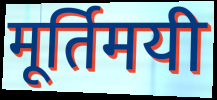
मूर्तिमयी